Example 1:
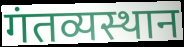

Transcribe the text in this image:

गंतव्यस्थान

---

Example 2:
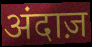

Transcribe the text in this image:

अंदाज़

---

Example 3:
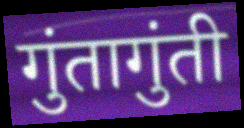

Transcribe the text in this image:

गुंतागुंती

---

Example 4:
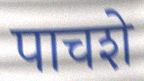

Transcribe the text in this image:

पाचशे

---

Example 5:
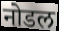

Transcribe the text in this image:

नोडल